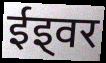
ईइ्वर